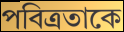
পবিত্রতাকে